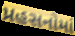
પ્રહસનોમાં